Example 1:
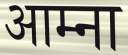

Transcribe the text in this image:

आम्ना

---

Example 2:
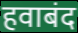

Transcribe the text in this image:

हवाबंद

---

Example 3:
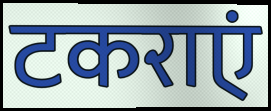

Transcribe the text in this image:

टकराएं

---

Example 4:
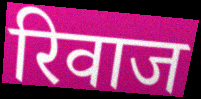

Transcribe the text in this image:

रिवाज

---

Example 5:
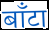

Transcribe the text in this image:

बाँटा